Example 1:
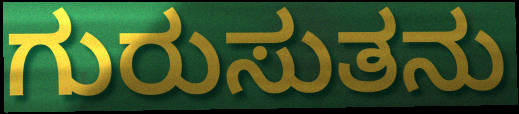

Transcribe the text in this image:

ಗುರುಸುತನು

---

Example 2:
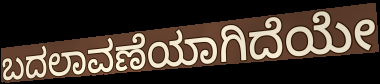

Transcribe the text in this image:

ಬದಲಾವಣೆಯಾಗಿದೆಯೇ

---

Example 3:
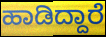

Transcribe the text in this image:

ಹಾಡಿದ್ದಾರೆ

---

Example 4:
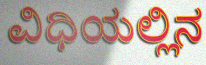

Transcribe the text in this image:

ವಿಧಿಯಲ್ಲಿನ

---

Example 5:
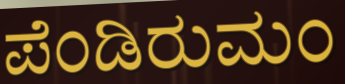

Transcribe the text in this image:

ಪೆಂಡಿರುಮಂ